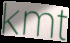
kmt